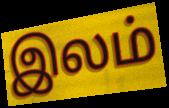
இலம்